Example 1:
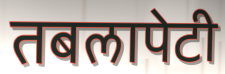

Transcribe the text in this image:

तबलापेटी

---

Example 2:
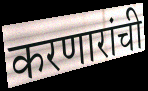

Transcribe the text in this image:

करणारांची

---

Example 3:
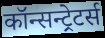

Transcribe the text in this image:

कॉन्सन्ट्रेटर्स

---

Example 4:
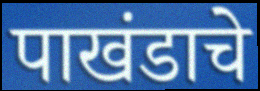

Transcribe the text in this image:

पाखंडाचे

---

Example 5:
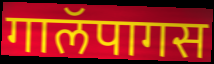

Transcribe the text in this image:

गालॅपागस